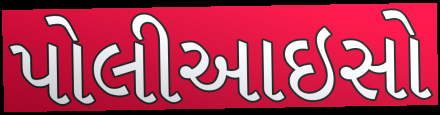
પોલીઆઇસો